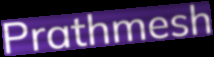
Prathmesh